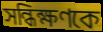
সন্ধিক্ষণকে